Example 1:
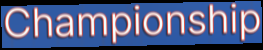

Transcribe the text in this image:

Championship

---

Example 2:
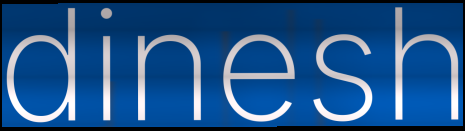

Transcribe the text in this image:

dinesh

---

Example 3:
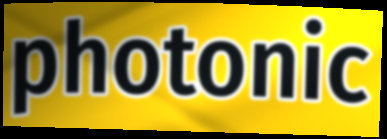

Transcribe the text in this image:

photonic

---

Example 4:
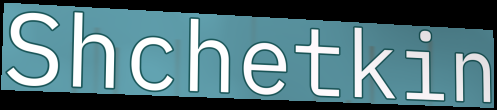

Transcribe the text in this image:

Shchetkin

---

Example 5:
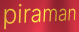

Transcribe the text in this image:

piraman